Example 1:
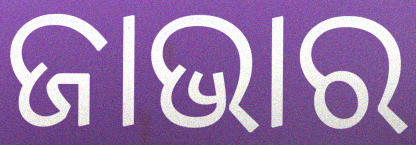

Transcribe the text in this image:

ଜାଭାର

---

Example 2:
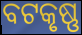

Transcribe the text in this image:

ବଟକୃଷ୍ଣ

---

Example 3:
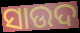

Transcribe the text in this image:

ସାଉଦ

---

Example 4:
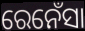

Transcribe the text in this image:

ରେନେଁସା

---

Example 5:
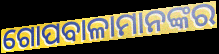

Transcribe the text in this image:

ଗୋପବାଳାମାନଙ୍କର